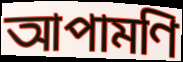
আপামণি